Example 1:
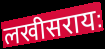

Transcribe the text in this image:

लखीसरायः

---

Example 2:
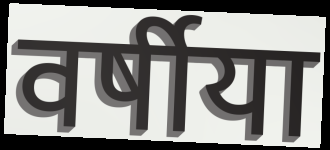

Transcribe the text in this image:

वर्षीया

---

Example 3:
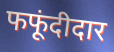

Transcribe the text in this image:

फफूंदीदार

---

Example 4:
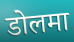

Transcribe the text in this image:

डोलमा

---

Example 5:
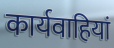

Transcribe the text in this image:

कार्यवाहियां